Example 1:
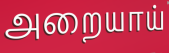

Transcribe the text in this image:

அறையாய்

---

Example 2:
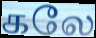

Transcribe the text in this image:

கலே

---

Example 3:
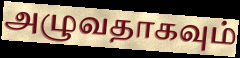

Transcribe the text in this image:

அழுவதாகவும்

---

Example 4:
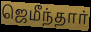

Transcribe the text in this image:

ஜெமீந்தார்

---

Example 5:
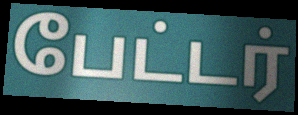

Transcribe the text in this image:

பேட்டர்